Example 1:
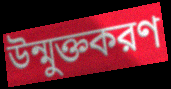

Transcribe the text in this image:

উন্মুক্তকরণ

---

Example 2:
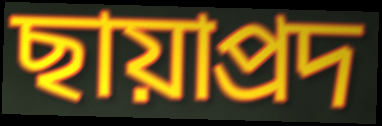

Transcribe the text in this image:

ছায়াপ্রদ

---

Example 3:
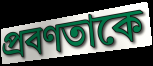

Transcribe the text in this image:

প্রবণতাকে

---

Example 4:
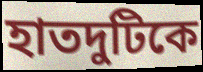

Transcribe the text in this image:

হাতদুটিকে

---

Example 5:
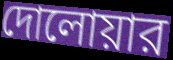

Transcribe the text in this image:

দোলোয়ার